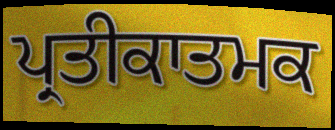
ਪ੍ਰਤੀਕਾਤਮਕ